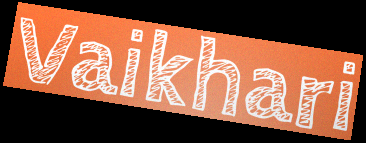
Vaikhari